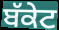
ਬੱਕੇਟ